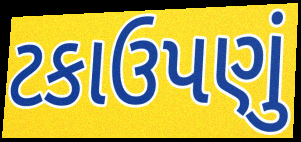
ટકાઉપણું